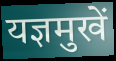
यज्ञमुखें